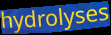
hydrolyses